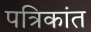
पत्रिकांत